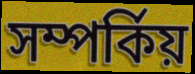
সম্পৰ্কিয়